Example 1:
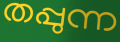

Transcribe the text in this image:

തപ്പുന്ന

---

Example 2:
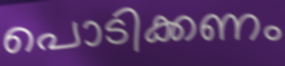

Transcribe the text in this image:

പൊടിക്കണം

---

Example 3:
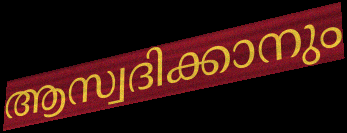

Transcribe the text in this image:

ആസ്വദിക്കാനും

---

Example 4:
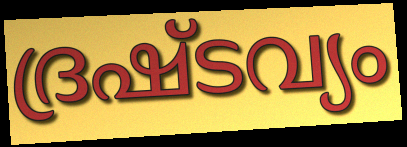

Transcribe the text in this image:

ദ്രഷ്ടവ്യം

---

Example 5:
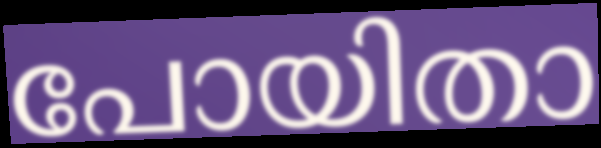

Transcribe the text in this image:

പോയിതാ